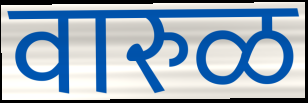
वारुळ